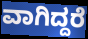
ವಾಗಿದ್ದರೆ